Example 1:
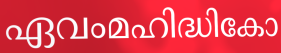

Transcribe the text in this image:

ഏവംമഹിദ്ധികോ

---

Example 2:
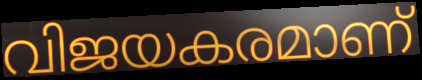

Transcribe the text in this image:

വിജയകരമാണ്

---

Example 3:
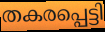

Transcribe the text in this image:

തകരപ്പെട്ടി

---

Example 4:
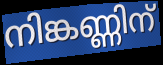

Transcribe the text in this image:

നിങ്കണ്ണിന്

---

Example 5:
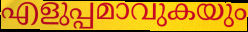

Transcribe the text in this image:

എളുപ്പമാവുകയും